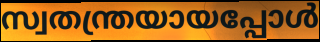
സ്വതന്ത്രയായപ്പോൾ